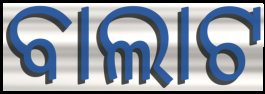
ବାଲାଟ